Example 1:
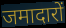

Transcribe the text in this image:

जमादारों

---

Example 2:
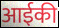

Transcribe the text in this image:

आईकी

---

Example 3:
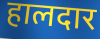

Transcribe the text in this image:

हालदार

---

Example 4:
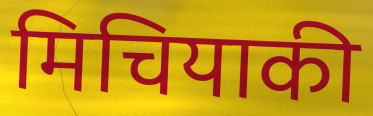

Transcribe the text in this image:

मिचियाकी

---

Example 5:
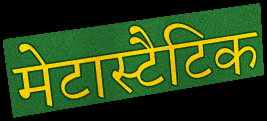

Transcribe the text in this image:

मेटास्टैटिक